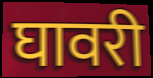
घावरी